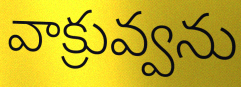
వాక్రువ్వను